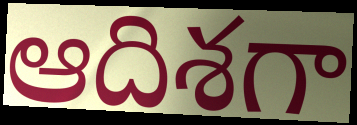
ఆదిశగా